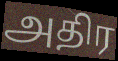
அதிர